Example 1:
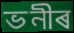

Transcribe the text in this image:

ভনীৰ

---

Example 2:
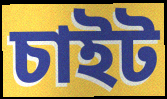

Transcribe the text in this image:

চাইট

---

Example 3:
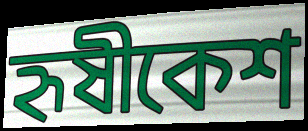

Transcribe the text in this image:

হৃষীকেশ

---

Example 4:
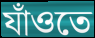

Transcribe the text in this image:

যাঁওতে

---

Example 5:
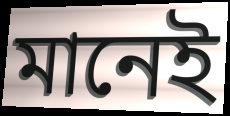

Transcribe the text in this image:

মানেই